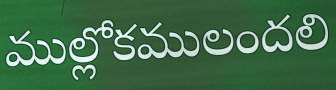
ముల్లోకములందలి